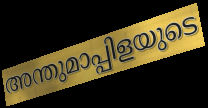
അന്തുമാപ്പിളയുടെ